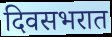
दिवसभरात